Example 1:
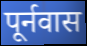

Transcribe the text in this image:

पूर्नवास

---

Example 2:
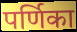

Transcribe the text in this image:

पर्णिका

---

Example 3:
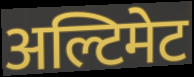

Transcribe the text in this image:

अल्टिमेट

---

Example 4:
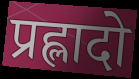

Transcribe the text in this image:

प्रह्लादो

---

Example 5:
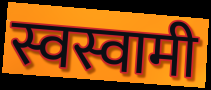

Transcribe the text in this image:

स्वस्वामी